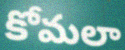
కోమలా